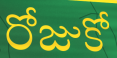
రోజుకో